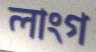
লাংগ